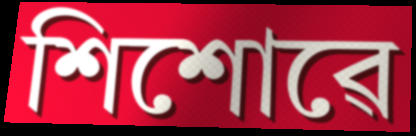
শিশোৱে